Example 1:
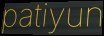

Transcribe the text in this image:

patiyun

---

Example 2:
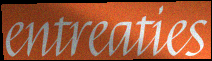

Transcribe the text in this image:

entreaties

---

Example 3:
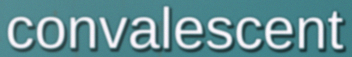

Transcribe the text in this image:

convalescent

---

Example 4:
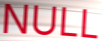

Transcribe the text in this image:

NULL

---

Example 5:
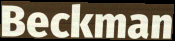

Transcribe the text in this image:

Beckman